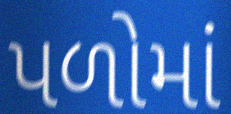
પળોમાં